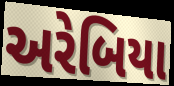
અરેબિયા